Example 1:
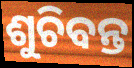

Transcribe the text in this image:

ଶୁଚିବନ୍ତ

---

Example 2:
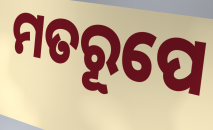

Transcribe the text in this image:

ମତରୂପେ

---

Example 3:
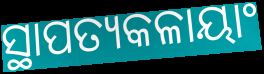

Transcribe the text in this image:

ସ୍ଥାପତ୍ୟକଳାୟାଂ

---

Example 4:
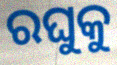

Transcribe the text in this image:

ରଘୁକୁ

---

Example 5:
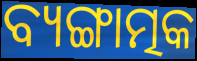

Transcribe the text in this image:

ବ୍ୟଙ୍ଗାତ୍ମକ